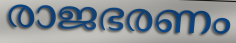
രാജഭരണം